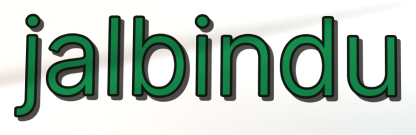
jalbindu